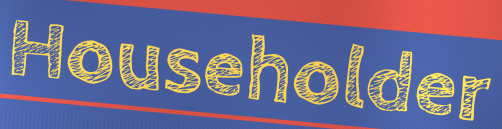
Householder